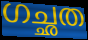
ഗച്ഛത